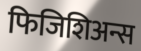
फिजिशिअन्स